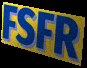
FSFR